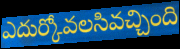
ఎదుర్కోవలసివచ్చింది